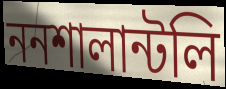
ননশালান্টলি